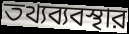
তথ্যব্যবস্থার